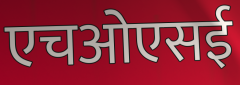
एचओएसई